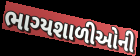
ભાગ્યશાળીઓની